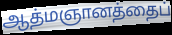
ஆத்மஞானத்தைப்